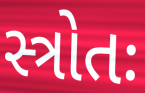
સ્ત્રોતઃ